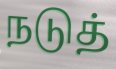
நடுத்